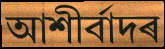
আশীৰ্বাদৰ